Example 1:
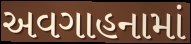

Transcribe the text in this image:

અવગાહનામાં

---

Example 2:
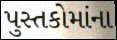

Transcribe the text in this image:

પુસ્તકોમાંના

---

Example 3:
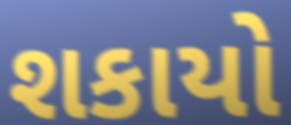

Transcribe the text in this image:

શકાયો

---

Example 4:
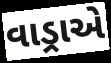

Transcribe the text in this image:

વાડ્રાએ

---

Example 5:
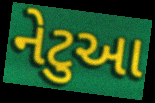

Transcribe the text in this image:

નેટુઆ